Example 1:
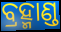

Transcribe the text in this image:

ବ୍ରହ୍ମାଣ୍ଡ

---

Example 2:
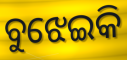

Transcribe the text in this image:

ବୁଝେଇକି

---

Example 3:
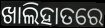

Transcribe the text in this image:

ଖାଲିହାତରେ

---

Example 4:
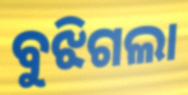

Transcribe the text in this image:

ବୁଝିଗଲା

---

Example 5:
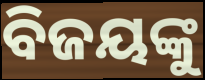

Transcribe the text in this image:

ବିଜୟଙ୍କୁ